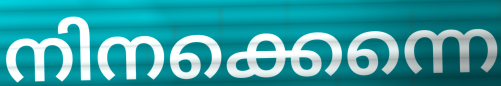
നിനക്കെന്നെ